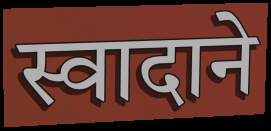
स्वादाने